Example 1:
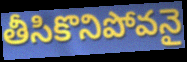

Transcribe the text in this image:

తీసికొనిపోవనై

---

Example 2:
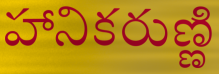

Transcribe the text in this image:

హానికరుణ్ణి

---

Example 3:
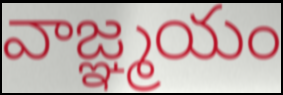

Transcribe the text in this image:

వాజ్ఞ్మయం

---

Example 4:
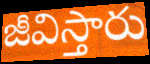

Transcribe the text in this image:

జీవిస్తారు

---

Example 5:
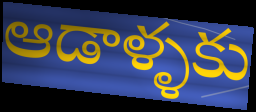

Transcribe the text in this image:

ఆడాళ్ళకు